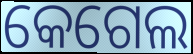
କେଗେଲ